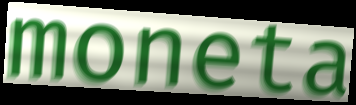
moneta